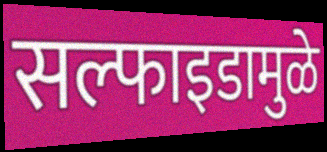
सल्फाइडामुळे